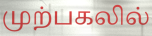
முற்பகலில்